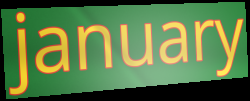
january